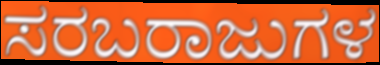
ಸರಬರಾಜುಗಳ